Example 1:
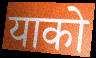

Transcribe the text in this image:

याको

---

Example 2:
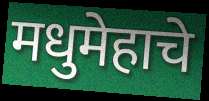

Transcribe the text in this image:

मधुमेहाचे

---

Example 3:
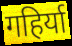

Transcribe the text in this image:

गहिर्या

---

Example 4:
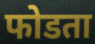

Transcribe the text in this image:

फोडता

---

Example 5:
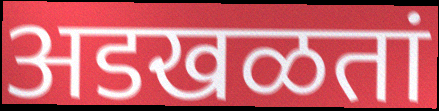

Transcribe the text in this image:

अडखळतां